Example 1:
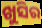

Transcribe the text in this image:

ଖୁସିର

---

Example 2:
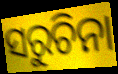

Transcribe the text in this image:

ସରୁଚିନା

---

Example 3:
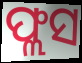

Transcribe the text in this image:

ଫ୍ଲସ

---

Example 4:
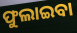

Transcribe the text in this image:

ଫୁଲାଇବା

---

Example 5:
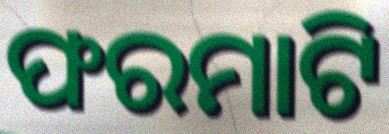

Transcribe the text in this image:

ଫରମାଟି